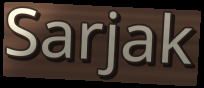
Sarjak